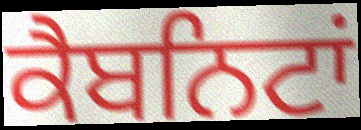
ਕੈਬਨਿਟਾਂ